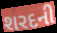
શરદની